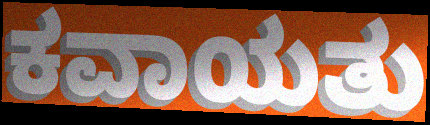
ಕವಾಯತು